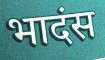
भादंस